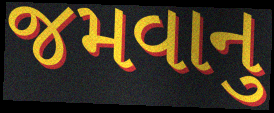
જમવાનુ